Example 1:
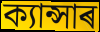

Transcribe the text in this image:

ক্যান্সাৰ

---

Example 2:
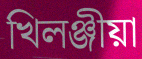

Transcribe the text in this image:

খিলঞ্জীয়া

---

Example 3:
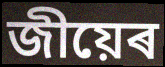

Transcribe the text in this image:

জীয়েৰ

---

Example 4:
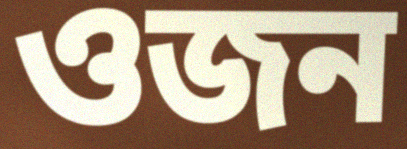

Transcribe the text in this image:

ওজন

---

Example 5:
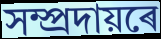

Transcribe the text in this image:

সম্প্ৰদায়ৰে